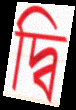
দ্বি